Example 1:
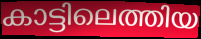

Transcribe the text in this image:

കാട്ടിലെത്തിയ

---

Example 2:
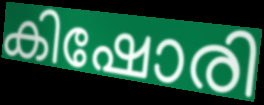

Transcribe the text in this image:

കിഷോരി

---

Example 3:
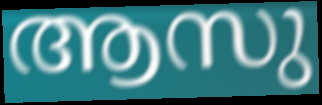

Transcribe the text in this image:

ആസു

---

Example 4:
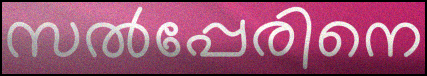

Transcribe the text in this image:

സൽപ്പേരിനെ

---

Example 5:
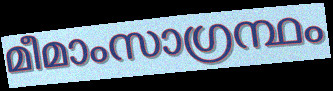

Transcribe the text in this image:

മീമാംസാഗ്രന്ഥം